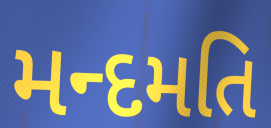
મન્દમતિ